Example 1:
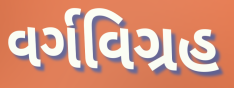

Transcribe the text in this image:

વર્ગવિગ્રહ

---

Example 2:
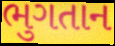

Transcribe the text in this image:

ભુગતાન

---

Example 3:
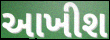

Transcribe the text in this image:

આખીશ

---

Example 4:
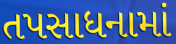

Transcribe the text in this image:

તપસાધનામાં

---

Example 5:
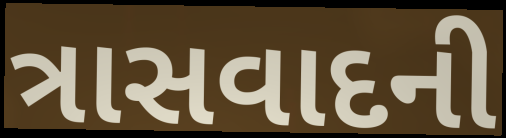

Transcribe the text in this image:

ત્રાસવાદની